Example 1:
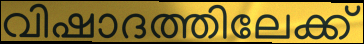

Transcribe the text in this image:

വിഷാദത്തിലേക്ക്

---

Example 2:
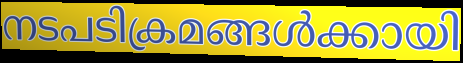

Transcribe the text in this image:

നടപടിക്രമങ്ങൾക്കായി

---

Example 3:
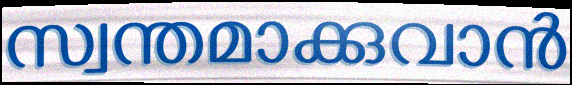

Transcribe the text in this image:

സ്വന്തമാക്കുവാൻ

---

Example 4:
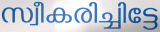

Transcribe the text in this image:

സ്വീകരിച്ചിട്ടേ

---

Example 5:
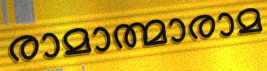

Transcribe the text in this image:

രാമാത്മാരാമ